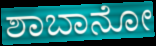
ಶಾಬಾನೋ